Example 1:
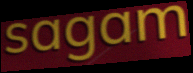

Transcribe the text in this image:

sagam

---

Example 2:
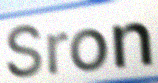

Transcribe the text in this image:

Sron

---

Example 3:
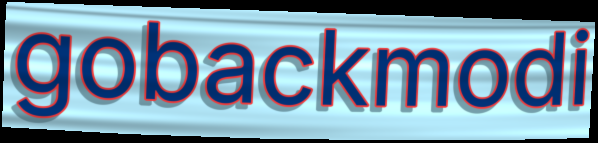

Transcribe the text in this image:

gobackmodi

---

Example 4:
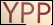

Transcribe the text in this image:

YPP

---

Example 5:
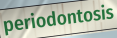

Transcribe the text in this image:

periodontosis